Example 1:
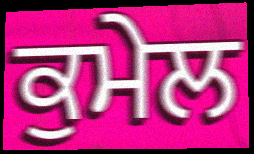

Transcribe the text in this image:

ਕੁਮੇਲ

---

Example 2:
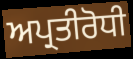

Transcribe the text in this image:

ਅਪ੍ਰਤੀਰੋਧੀ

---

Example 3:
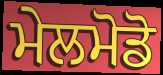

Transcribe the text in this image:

ਮੇਲਮੋਡੋ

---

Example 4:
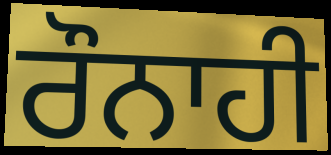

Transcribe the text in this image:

ਰੌਨਾਹੀ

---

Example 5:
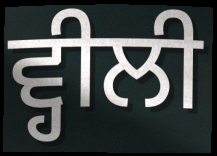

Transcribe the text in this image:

ਵ੍ਹੀਲੀ